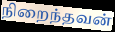
நிறைந்தவன்